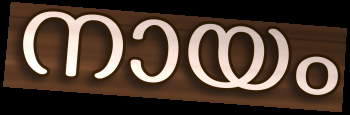
നായം